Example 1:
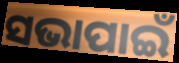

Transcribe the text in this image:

ସଭାପାଇଁ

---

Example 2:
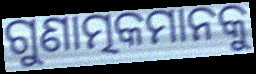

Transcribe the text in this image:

ଗୁଣାତ୍ମକମାନକୁ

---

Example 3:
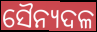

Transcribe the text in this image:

ସୈନ୍ୟଦଳ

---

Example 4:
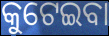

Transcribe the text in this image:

କୁଟେଇବା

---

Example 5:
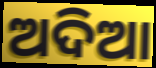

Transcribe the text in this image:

ଅଦିଆ